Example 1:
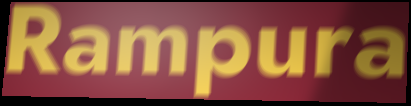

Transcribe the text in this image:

Rampura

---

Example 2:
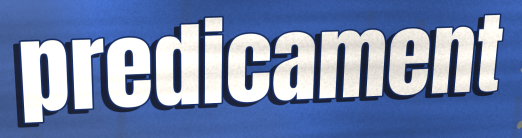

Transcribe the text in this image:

predicament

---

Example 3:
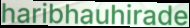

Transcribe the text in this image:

haribhauhirade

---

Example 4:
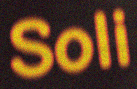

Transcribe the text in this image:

Soli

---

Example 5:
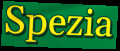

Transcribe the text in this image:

Spezia